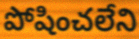
పోషించలేని